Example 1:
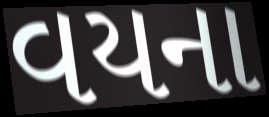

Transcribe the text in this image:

વયના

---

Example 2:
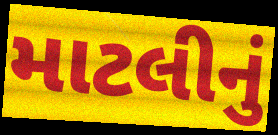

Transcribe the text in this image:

માટલીનું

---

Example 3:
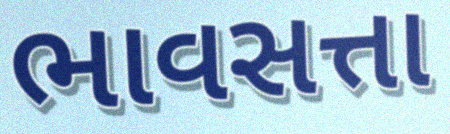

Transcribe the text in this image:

ભાવસત્તા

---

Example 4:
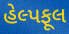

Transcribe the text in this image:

હેલ્પફૂલ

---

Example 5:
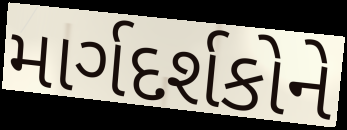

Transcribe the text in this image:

માર્ગદર્શકોને